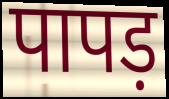
पापड़